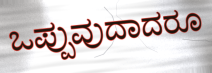
ಒಪ್ಪುವುದಾದರೂ